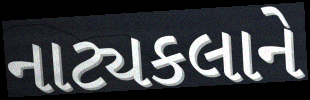
નાટ્યકલાને